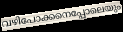
വഴിപോക്കനെപ്പോലെയും